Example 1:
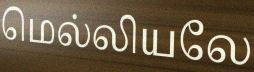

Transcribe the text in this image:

மெல்லியலே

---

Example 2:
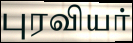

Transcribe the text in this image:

புரவியர்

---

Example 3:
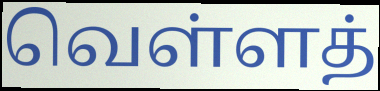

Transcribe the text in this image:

வெள்ளத்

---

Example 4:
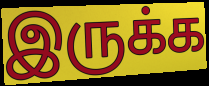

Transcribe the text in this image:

இருக்க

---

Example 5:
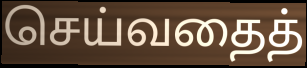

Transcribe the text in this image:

செய்வதைத்